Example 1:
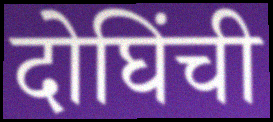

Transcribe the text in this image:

दोघिंची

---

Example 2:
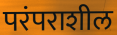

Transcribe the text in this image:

परंपराशील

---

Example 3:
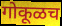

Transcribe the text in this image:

गोकूळच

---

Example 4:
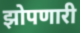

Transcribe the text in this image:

झोपणारी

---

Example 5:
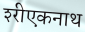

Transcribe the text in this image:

श्रीएकनाथ